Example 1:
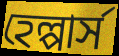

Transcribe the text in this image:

হেল্পার্স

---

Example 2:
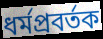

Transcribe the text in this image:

ধর্মপ্রবর্তক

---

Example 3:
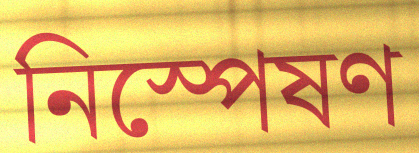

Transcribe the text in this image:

নিস্পেষণ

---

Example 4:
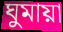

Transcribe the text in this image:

ঘুমায়া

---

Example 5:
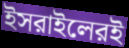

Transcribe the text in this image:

ইসরাইলেরই